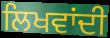
ਲਿਖਵਾਂਦੀ